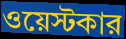
ওয়েস্টকার